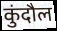
कुंदौल